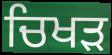
ਚਿਖੜ